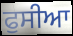
ਫੁਸੀਆ